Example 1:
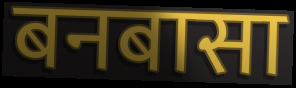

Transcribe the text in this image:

बनबासा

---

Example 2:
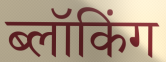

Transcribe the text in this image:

ब्लॉकिंग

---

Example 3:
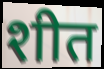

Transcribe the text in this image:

शीत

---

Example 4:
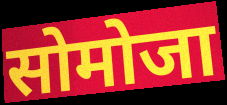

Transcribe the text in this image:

सोमोजा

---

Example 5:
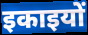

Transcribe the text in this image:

इकाइयों